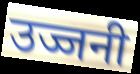
उज्जनी